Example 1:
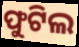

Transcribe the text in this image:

ଫୁଟିଲ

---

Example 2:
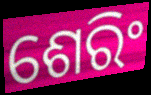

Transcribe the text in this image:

ଶେରିଂ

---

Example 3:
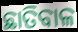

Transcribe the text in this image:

ଛାତିବାଳ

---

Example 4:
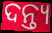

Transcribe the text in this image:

ଦନ୍ତ୍ଯ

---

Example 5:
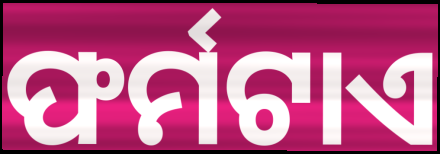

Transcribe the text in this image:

ଫର୍ମଟାଏ